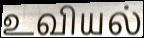
உவியல்